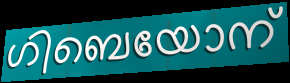
ഗിബെയോന്